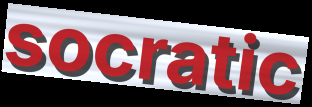
socratic